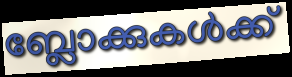
ബ്ലോക്കുകൾക്ക്